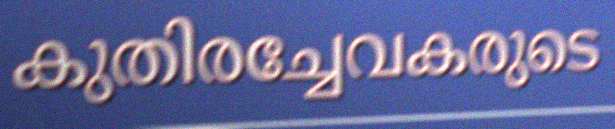
കുതിരച്ചേവകരുടെ